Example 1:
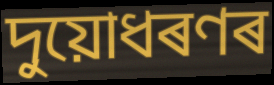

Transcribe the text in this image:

দুয়োধৰণৰ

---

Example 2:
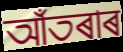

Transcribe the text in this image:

আঁতৰাৰ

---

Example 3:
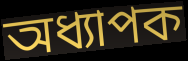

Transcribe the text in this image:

অধ্যাপক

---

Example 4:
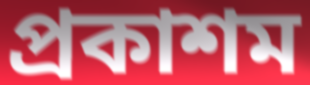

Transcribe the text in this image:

প্ৰকাশম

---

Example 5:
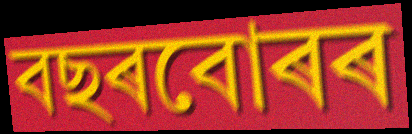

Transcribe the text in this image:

বছৰবোৰৰ